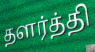
தளர்த்தி